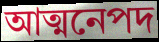
আত্মনেপদ